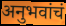
अनुभवांचं